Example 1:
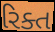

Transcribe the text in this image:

રિક્ત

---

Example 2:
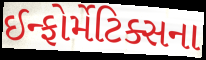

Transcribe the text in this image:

ઈન્ફોર્મેટિક્સના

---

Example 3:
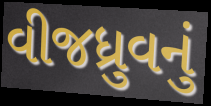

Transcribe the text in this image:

વીજધ્રુવનું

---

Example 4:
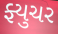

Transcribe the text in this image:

ફ્યુચર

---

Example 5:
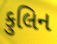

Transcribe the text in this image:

કુલિન